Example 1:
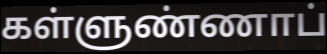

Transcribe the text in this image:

கள்ளுண்ணாப்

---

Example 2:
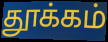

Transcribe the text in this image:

தூக்கம்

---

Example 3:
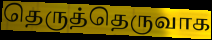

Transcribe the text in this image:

தெருத்தெருவாக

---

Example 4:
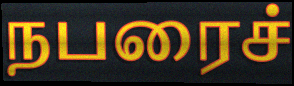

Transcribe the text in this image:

நபரைச்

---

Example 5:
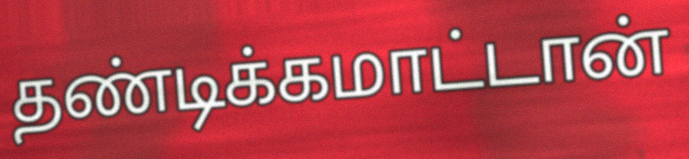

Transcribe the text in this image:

தண்டிக்கமாட்டான்